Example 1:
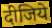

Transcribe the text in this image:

दीजिये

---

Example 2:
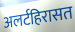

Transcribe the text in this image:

अलर्टहिरासत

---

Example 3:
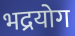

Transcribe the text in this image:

भद्रयोग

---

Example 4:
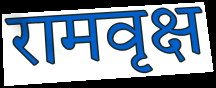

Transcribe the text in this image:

रामवृक्ष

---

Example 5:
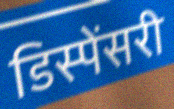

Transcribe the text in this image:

डिस्पेंसरी